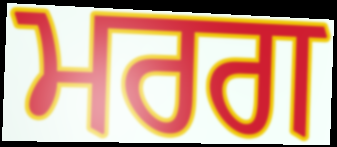
ਮਰਗ